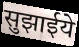
सुझाईये